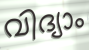
വിദ്യാം